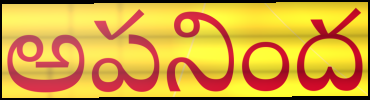
అపనింద